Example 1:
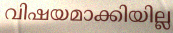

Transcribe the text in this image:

വിഷയമാക്കിയില്ല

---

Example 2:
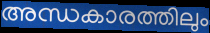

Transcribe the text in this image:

അന്ധകാരത്തിലും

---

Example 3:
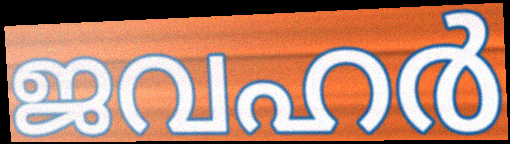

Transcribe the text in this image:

ജവഹർ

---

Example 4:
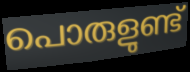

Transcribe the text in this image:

പൊരുളുണ്ട്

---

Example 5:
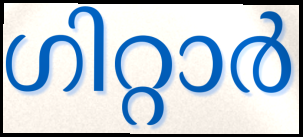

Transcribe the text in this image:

ഗിറ്റാർ